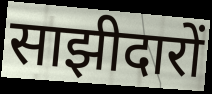
साझीदारों